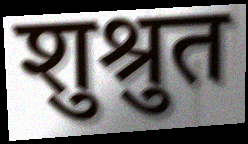
शुश्रुत